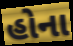
હોના